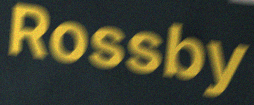
Rossby